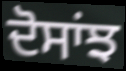
ਦੋਸਾਂਝ